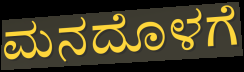
ಮನದೊಳಗೆ